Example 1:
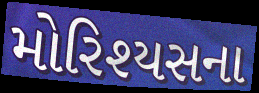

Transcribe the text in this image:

મોરિશ્યસના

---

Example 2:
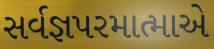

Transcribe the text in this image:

સર્વજ્ઞપરમાત્માએ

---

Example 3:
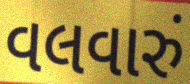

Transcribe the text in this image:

વલવારું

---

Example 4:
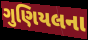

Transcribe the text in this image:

ગુણિયલના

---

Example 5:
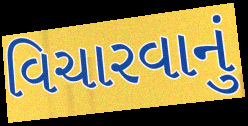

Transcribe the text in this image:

વિચારવાનું